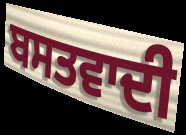
ਬਸਤਵਾਦੀ